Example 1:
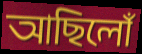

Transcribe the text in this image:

আছিলোঁ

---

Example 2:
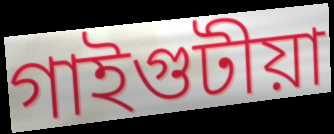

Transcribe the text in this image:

গাইগুটীয়া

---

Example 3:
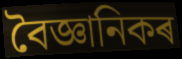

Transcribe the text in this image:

বৈজ্ঞানিকৰ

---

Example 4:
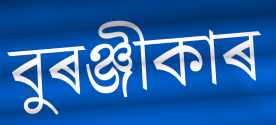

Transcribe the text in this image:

বুৰঞ্জীকাৰ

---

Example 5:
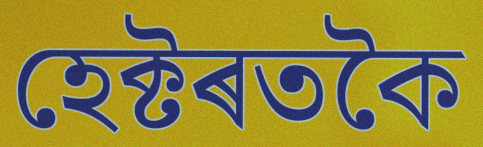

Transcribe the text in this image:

হেক্টৰতকৈ